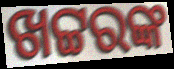
ଖଟ୍ଟରଙ୍କ